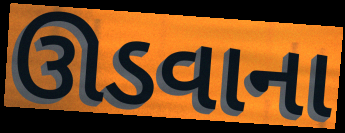
ઊડવાના